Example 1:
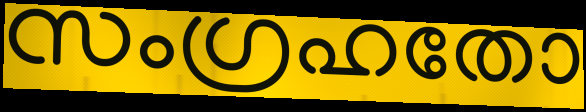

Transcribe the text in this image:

സംഗ്രഹതോ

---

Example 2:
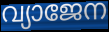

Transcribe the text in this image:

വ്യാജേന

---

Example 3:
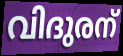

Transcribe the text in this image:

വിദുരന്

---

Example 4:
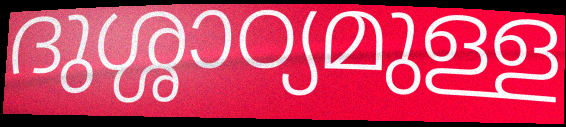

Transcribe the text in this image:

ദുശ്ശാഠ്യമുള്ള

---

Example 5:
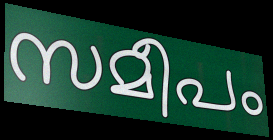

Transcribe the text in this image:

സമീപം